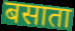
बसाता